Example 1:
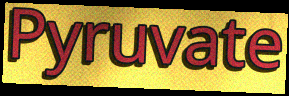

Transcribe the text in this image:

Pyruvate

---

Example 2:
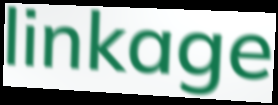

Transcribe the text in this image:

linkage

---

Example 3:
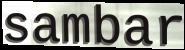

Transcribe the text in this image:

sambar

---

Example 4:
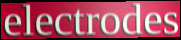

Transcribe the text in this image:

electrodes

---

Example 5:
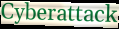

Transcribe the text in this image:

Cyberattack